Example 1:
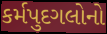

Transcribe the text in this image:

કર્મપુદગલોનો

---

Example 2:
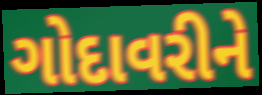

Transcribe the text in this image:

ગોદાવરીને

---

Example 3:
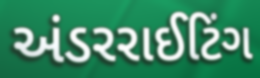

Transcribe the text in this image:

અંડરરાઈટિંગ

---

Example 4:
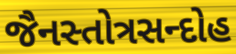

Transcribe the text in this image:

જૈનસ્તોત્રસન્દોહ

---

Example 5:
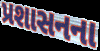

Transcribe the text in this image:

પ્રશાસનના